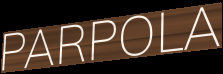
PARPOLA